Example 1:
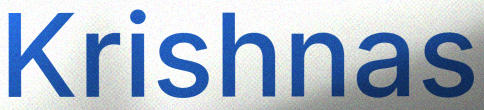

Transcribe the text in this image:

Krishnas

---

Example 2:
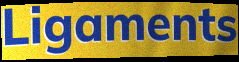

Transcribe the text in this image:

Ligaments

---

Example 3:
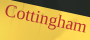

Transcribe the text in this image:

Cottingham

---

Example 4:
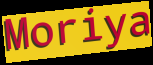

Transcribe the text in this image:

Moriya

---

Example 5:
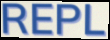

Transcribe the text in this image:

REPL